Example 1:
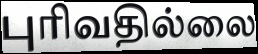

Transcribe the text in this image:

புரிவதில்லை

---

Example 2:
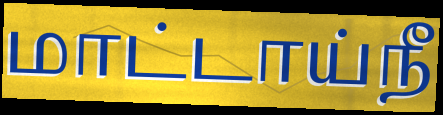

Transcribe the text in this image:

மாட்டாய்நீ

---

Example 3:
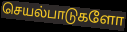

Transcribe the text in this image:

செயல்பாடுகளோ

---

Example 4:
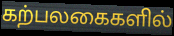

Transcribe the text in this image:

கற்பலகைகளில்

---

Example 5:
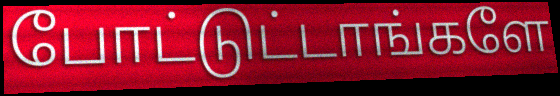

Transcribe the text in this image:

போட்டுட்டாங்களே